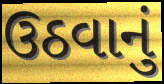
ઉઠવાનું